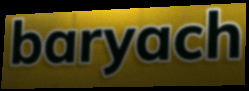
baryach